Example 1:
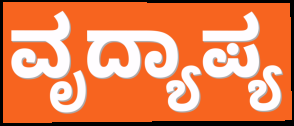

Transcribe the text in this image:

ವೃದ್ಯಾಪ್ಯ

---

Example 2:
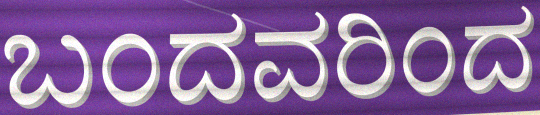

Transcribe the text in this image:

ಬಂದವರಿಂದ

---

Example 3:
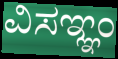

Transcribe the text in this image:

ವಿಸಞ್ಞಂ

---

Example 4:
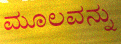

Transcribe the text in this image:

ಮೂಲವನ್ನು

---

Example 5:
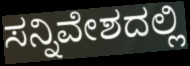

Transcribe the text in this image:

ಸನ್ನಿವೇಶದಲ್ಲಿ